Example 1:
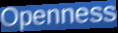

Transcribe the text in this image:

Openness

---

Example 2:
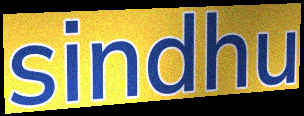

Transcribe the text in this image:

sindhu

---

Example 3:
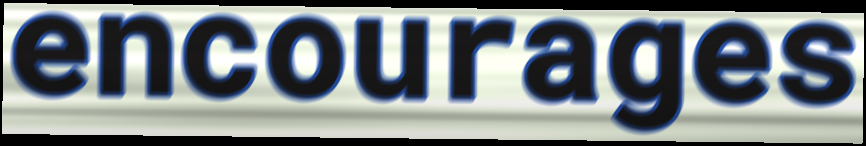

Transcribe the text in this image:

encourages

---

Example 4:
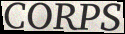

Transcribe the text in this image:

CORPS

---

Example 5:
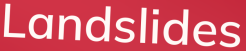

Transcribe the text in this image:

Landslides